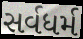
સર્વધર્મ